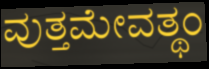
ವುತ್ತಮೇವತ್ಥಂ